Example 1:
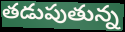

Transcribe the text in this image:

తడుపుతున్న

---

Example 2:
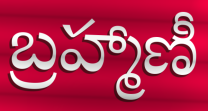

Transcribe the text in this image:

బ్రహ్మాణీ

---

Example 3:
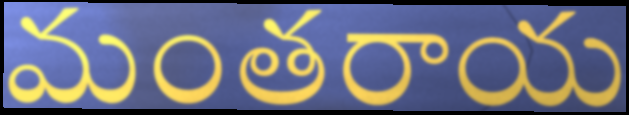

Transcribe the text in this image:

మంతరాయ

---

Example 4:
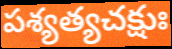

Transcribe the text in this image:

పశ్యత్యచక్షుః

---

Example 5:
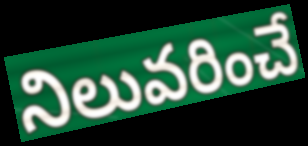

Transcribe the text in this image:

నిలువరించే